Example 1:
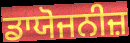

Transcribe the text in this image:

ਡਾਯੋਜਨੀਜ਼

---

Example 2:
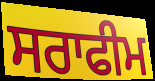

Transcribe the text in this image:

ਸਰਾਫੀਮ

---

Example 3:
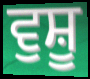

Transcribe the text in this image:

ਵੁਸ਼ੂ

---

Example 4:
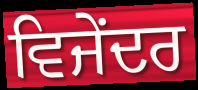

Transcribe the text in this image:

ਵਿਜੇਂਦਰ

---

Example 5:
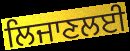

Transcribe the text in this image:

ਲਿਜਾਣਲਈ